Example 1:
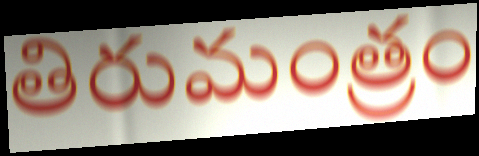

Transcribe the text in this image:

తిరుమంత్రం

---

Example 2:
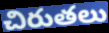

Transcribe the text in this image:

చిరుతలు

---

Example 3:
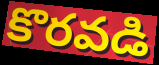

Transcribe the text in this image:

కొరవడి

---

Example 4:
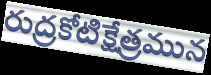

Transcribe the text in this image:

రుద్రకోటిక్షేత్రమున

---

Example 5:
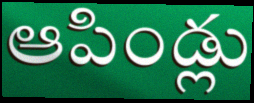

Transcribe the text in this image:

ఆపిండ్లు